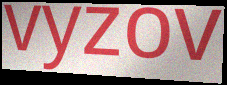
vyzov